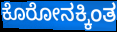
ಕೊರೋನಕ್ಕಿಂತ